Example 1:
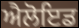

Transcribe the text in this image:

ਐਲੋਇਡ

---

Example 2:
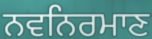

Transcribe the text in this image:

ਨਵਨਿਰਮਾਣ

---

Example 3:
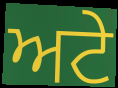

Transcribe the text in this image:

ਅਟੇ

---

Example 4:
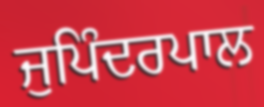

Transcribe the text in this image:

ਜੁਪਿੰਦਰਪਾਲ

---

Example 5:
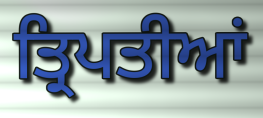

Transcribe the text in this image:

ਤ੍ਰਿਪਤੀਆਂ